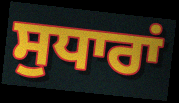
ਸੁਧਾਰਾਂ